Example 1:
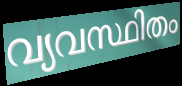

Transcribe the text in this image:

വ്യവസ്ഥിതം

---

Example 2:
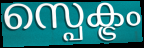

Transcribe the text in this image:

സ്പെക്ട്രം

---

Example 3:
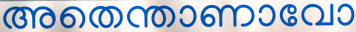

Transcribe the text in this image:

അതെന്താണാവോ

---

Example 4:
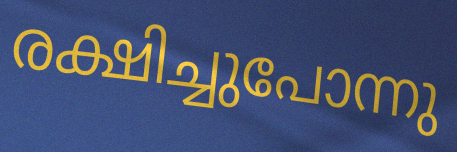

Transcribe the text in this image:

രക്ഷിച്ചുപോന്നു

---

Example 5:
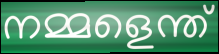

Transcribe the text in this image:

നമ്മളെന്ത്